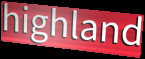
highland